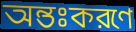
অন্তঃকরণে